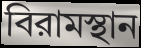
বিরামস্থান